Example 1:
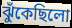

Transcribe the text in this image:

ঝুঁকেছিলো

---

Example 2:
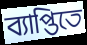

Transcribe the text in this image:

ব্যাপ্তিতে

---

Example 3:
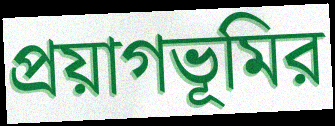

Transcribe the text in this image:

প্রয়াগভূমির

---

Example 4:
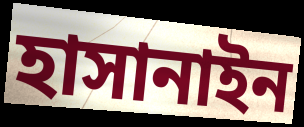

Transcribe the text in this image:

হাসানাইন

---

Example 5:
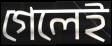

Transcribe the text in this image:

গেলেই